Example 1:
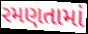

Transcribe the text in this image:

રમણતામાં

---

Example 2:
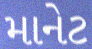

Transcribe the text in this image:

માનેટ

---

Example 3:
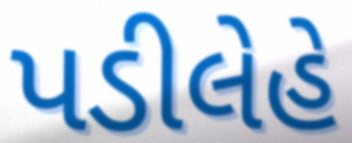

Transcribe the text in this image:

પડીલેહે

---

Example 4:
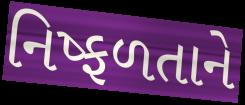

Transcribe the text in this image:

નિષ્ફળતાને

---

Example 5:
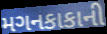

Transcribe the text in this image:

મગનકાકાની